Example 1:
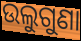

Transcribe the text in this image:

ଉଲୁଗୁଣା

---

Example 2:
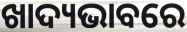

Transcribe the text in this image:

ଖାଦ୍ୟଭାବରେ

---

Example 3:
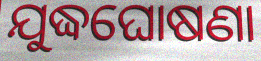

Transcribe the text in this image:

ଯୁଦ୍ଧଘୋଷଣା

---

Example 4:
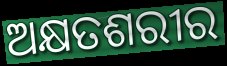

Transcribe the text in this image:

ଅକ୍ଷତଶରୀର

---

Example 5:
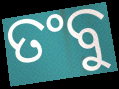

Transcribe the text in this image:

ତଂବୁ